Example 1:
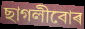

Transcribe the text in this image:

ছাগলীবোৰ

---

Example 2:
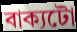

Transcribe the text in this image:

বাক্য়টো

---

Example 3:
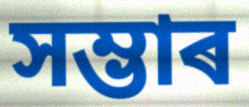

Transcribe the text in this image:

সম্ভাৰ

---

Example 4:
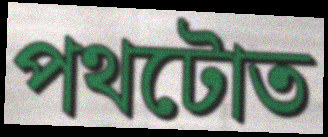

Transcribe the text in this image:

পথটোত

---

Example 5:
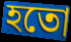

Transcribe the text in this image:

হতো